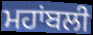
ਮਹਾਂਬਲੀ